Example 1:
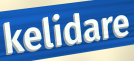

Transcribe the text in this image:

kelidare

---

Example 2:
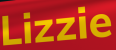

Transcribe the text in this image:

Lizzie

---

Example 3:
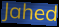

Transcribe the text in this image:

Jahed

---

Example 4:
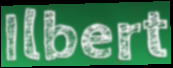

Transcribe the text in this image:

Ilbert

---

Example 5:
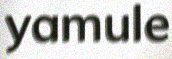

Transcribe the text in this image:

yamule